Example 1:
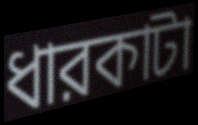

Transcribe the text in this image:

ধারকাটা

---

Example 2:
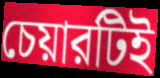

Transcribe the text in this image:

চেয়ারটিই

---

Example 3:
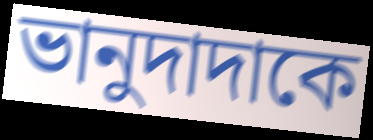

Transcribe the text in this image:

ভানুদাদাকে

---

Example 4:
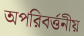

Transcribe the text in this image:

অপরিবর্ত্তনীয়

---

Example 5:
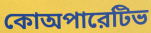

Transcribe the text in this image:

কোঅপারেটিভ